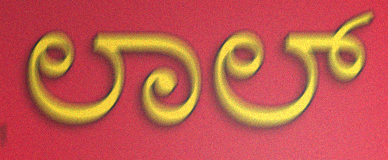
ಲಾಲ್